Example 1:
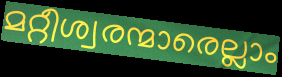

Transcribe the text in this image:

മറ്റീശ്വരന്മാരെല്ലാം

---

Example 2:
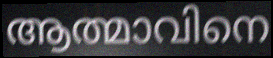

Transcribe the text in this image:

ആത്മാവിനെ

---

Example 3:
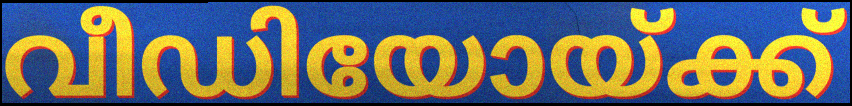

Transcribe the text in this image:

വീഡിയോയ്ക്ക്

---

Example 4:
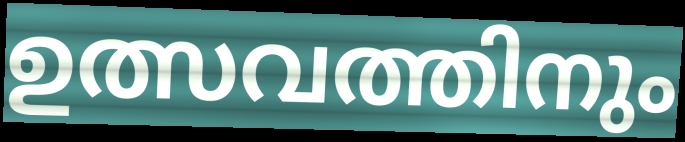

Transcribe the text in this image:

ഉത്സവത്തിനും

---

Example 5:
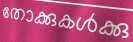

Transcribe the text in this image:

തോക്കുകൾക്കു